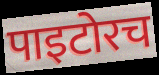
पाइटोरच